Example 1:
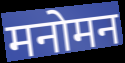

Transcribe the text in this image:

मनोमन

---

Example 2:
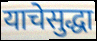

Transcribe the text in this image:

याचेसुद्धा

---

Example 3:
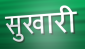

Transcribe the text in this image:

सुखारी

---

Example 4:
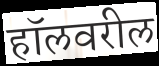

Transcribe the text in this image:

हॉलवरील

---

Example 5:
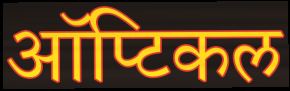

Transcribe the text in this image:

ऑप्टिकल